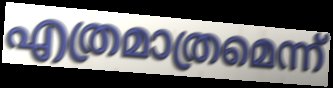
എത്രമാത്രമെന്ന്